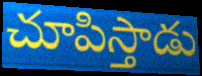
చూపిస్తాడు